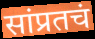
सांप्रतचं